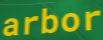
arbor